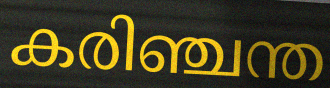
കരിഞ്ചന്ത